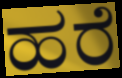
ಹರೆ